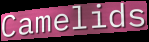
Camelids